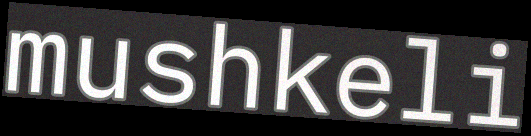
mushkeli